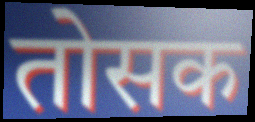
तोसक